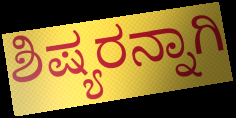
ಶಿಷ್ಯರನ್ನಾಗಿ